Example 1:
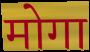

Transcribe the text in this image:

मोगा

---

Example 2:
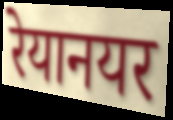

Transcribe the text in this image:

रेयानयर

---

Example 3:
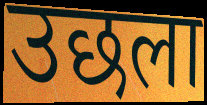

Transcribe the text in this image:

उछला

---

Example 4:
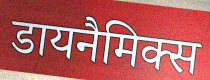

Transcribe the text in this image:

डायनैमिक्स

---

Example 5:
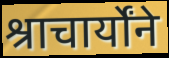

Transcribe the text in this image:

श्राचार्योंने